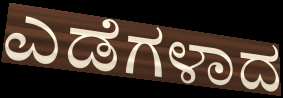
ಎಡೆಗಳಾದ